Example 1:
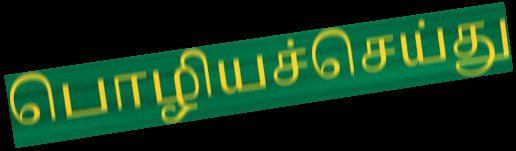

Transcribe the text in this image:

பொழியச்செய்து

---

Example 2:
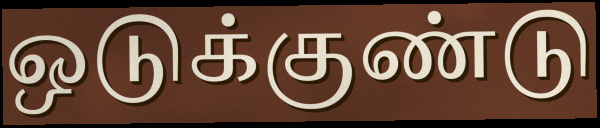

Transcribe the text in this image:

ஒடுக்குண்டு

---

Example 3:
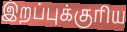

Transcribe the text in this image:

இறப்புக்குரிய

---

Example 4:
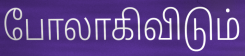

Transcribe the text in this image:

போலாகிவிடும்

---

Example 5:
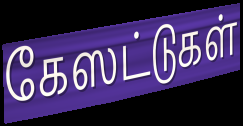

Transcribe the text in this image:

கேஸட்டுகள்